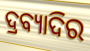
ଦ୍ରବ୍ୟାଦିର